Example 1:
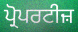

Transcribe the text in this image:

ਪ੍ਰੋਪਰਟੀਜ਼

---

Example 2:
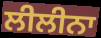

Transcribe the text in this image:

ਲੀਲੀਨਾ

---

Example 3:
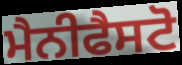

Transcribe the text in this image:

ਮੈਨੀਫੈਸਟੋ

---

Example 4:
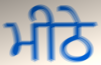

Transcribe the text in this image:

ਮੀਠੇ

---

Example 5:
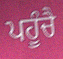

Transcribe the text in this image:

ਪਹੂੰਚੈ